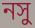
নসু